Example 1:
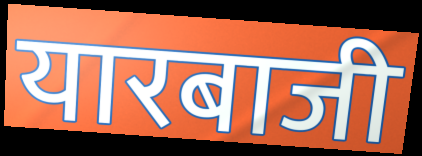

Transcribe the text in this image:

यारबाजी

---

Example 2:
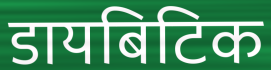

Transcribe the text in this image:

डायबिटिक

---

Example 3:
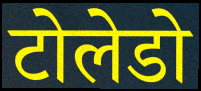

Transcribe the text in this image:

टोलेडो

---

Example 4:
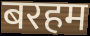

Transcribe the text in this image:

बरहम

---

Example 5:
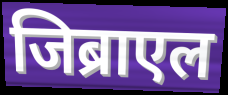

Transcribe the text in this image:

जिब्राएल